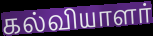
கல்வியாளர்